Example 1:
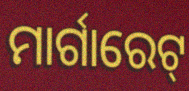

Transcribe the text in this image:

ମାର୍ଗାରେଟ୍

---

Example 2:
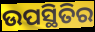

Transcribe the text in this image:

ଉପସ୍ଥିତିର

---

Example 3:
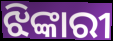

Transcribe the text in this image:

ଝିଙ୍କାରୀ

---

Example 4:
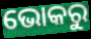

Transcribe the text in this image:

ଭୋକରୁ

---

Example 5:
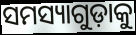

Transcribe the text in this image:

ସମସ୍ୟାଗୁଡ଼ାକୁ